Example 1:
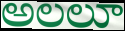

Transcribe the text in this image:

అలలూ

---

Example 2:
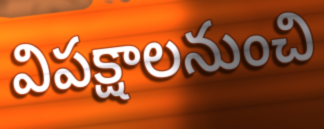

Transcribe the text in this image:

విపక్షాలనుంచి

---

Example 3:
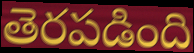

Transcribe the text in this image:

తెరపడింది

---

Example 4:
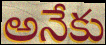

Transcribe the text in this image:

అనేకు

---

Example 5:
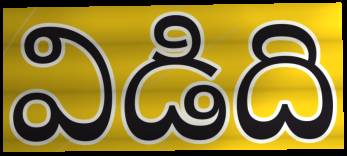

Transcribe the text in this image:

విడిది